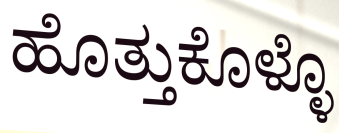
ಹೊತ್ತುಕೊಳ್ಳೊ